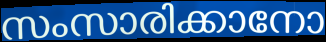
സംസാരിക്കാനോ